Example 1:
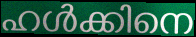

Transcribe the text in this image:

ഹൾക്കിനെ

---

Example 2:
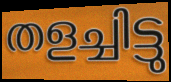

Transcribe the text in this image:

തളച്ചിട്ടു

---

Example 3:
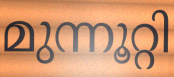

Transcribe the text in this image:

മുന്നൂറ്റി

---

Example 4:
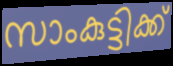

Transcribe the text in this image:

സാംകുട്ടിക്ക്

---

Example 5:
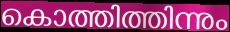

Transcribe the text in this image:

കൊത്തിത്തിന്നും